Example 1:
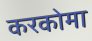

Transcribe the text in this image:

करकोमा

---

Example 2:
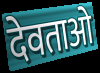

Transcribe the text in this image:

देवताओ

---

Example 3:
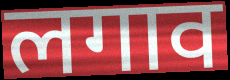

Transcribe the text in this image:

लगाव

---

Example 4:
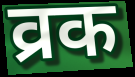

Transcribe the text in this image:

व्रक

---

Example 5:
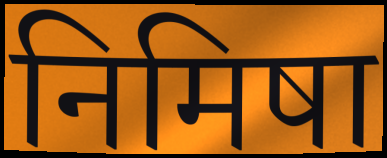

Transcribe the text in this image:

निमिषा